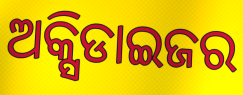
ଅକ୍ସିଡାଇଜର